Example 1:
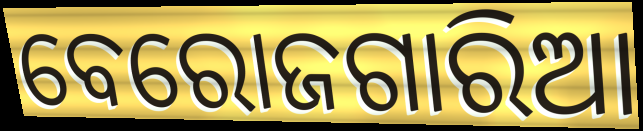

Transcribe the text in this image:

ବେରୋଜଗାରିଆ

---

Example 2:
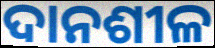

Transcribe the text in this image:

ଦାନଶୀଳ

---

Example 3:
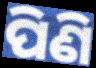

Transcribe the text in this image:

ପିଣି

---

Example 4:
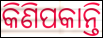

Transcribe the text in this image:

କିଣିପକାନ୍ତି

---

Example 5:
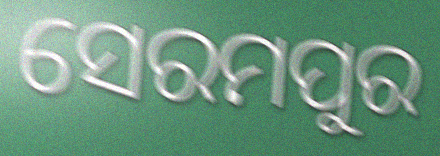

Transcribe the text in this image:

ସେରମପୁର